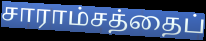
சாராம்சத்தைப்